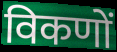
विकणों